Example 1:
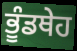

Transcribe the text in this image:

ਭੂੰਡਥੇਹ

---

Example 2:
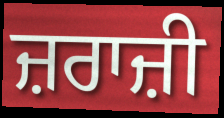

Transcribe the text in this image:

ਜ਼ਰਾਜ਼ੀ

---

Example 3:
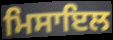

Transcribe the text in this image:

ਮਿਸਾਇਲ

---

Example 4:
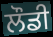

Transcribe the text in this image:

ਲੌਡੀ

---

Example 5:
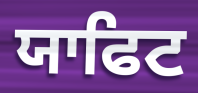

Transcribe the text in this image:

ਯਾਫਿਟ